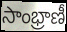
సాంభ్రాణీ